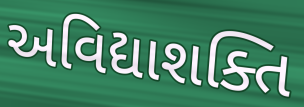
અવિદ્યાશક્તિ